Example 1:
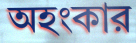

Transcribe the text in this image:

অহংকার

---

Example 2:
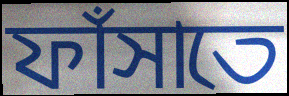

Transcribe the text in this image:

ফাঁসাতে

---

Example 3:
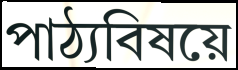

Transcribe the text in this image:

পাঠ্যবিষয়ে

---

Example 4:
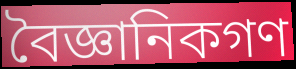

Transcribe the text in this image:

বৈজ্ঞানিকগণ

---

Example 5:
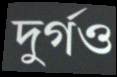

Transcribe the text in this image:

দুর্গও